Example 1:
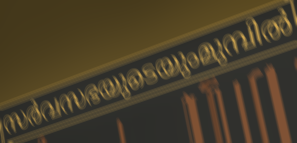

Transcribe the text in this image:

സർവസഭയുടെയുംമുമ്പിൽ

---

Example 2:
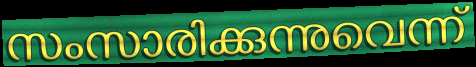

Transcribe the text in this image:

സംസാരിക്കുന്നുവെന്ന്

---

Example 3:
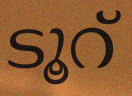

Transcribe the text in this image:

ടൂറ്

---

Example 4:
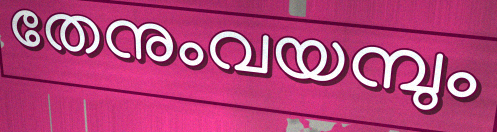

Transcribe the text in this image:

തേനുംവയമ്പും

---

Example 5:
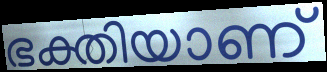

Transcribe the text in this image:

ഭക്തിയാണ്